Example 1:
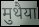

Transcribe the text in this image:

मुथैया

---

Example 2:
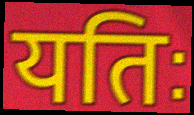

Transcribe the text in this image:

यतिः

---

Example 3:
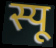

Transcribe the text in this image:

स्यू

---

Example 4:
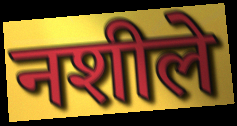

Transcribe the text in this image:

नशीले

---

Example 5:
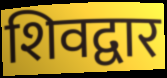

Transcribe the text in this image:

शिवद्वार